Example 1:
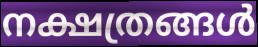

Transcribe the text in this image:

നക്ഷത്രങ്ങൾ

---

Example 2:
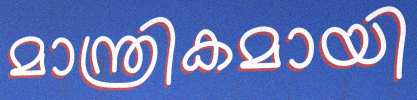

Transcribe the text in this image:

മാന്ത്രികമായി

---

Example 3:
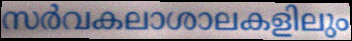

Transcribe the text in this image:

സർവകലാശാലകളിലും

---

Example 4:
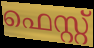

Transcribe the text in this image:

ഫെസ്റ്റ്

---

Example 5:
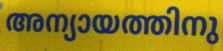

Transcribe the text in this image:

അന്യായത്തിനു